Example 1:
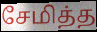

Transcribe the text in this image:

சேமித்த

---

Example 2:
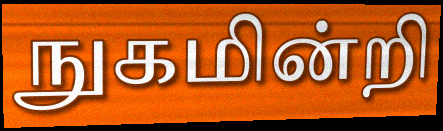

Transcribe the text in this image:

நுகமின்றி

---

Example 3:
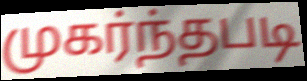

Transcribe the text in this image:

முகர்ந்தபடி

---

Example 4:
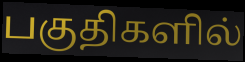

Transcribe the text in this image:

பகுதிகளில்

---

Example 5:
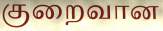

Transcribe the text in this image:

குறைவான